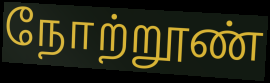
நோற்றூண்